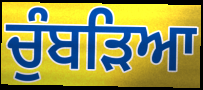
ਚੁੰਬੜਿਆ